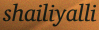
shailiyalli